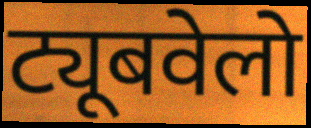
ट्यूबवेलो